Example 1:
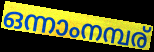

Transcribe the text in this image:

ഒന്നാംനമ്പര്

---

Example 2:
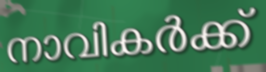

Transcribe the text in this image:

നാവികർക്ക്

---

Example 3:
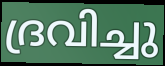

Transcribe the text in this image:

ദ്രവിച്ചു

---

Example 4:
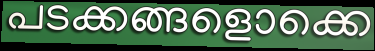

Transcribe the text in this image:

പടക്കങ്ങളൊക്കെ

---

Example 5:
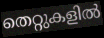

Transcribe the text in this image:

തെറ്റുകളിൽ